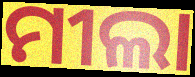
ମୀଲା